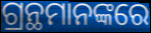
ଗ୍ରନ୍ଥମାନଙ୍କରେ